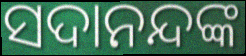
ସଦାନନ୍ଦଙ୍କ